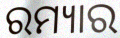
ରମ୍ୟାର